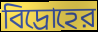
বিদ্রোহের